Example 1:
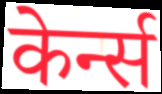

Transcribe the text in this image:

केर्न्स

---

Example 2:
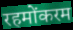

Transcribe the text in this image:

रहमोंकरम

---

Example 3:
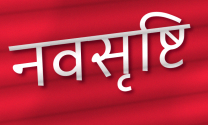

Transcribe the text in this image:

नवसृष्टि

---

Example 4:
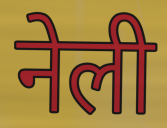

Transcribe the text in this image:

नेली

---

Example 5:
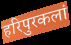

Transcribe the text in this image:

हरिपुरकलां